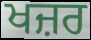
ਖਜ਼ਰ